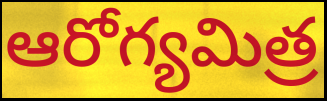
ఆరోగ్యమిత్ర